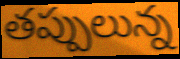
తప్పులున్న